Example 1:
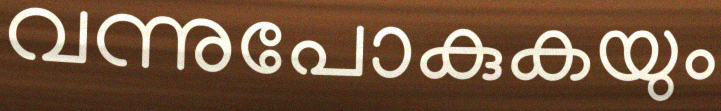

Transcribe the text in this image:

വന്നുപോകുകയും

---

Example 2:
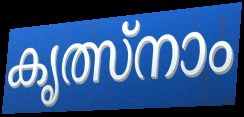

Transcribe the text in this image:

കൃത്സ്നാം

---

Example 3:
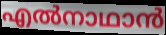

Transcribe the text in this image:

എൽനാഥാൻ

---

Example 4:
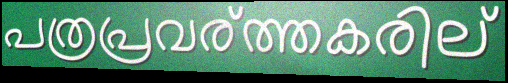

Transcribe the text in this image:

പത്രപ്രവര്ത്തകരില്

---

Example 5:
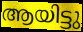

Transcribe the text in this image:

ആയിട്ടു